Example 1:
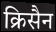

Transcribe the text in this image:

क्रिसैन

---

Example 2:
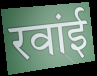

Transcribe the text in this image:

रवांई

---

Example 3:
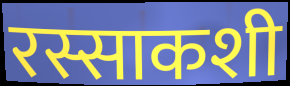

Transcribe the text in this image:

रस्साकशी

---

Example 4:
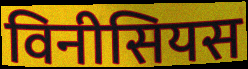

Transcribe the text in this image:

विनीसियस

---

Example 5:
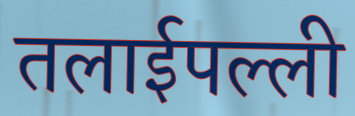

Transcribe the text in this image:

तलाईपल्ली